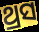
ଥ୍ରସ